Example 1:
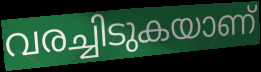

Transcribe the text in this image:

വരച്ചിടുകയാണ്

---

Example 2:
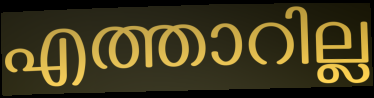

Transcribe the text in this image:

എത്താറില്ല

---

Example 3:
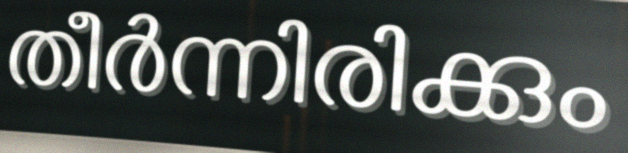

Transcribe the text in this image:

തീർന്നിരിക്കും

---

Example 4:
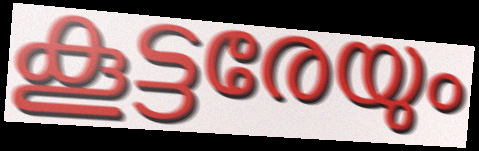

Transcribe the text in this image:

കൂട്ടരേയും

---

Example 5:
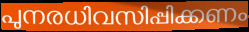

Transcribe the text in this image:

പുനരധിവസിപ്പിക്കണം